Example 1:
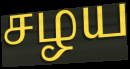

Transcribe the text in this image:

சழய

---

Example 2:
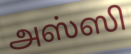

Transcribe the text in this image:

அஸ்ஸி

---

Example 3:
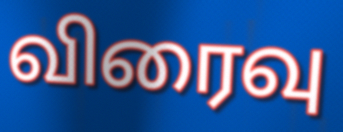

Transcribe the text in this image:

விரைவு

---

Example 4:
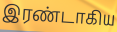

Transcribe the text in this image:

இரண்டாகிய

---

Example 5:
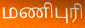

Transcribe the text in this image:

மணிபுரி